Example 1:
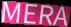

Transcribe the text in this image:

MERA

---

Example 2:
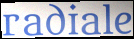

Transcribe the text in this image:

radiale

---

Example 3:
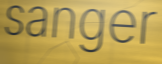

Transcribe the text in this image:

sanger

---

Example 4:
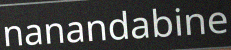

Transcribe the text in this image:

nanandabine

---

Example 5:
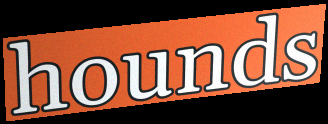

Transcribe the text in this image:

hounds